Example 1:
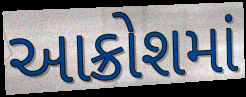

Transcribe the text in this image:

આક્રોશમાં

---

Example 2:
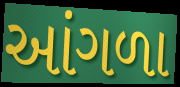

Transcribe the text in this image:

આંગળા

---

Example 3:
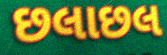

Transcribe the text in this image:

છલાછલ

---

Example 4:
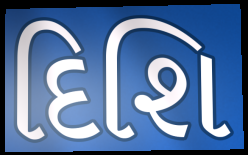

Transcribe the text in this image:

દિશિ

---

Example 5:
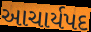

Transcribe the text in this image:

આચાર્યપદ